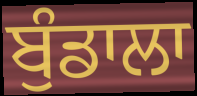
ਬੁੰਡਾਲਾ